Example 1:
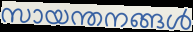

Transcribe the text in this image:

സായന്തനങ്ങൾ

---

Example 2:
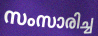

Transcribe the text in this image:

സംസാരിച്ച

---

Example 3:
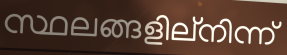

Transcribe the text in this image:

സ്ഥലങ്ങളില്നിന്ന്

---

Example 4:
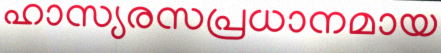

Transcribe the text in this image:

ഹാസ്യരസപ്രധാനമായ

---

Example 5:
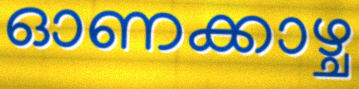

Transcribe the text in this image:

ഓണക്കാഴ്ച